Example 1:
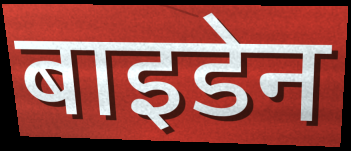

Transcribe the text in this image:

बाइडेन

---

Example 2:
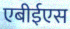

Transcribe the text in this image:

एबीईएस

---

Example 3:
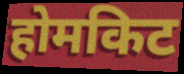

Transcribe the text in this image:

होमकिट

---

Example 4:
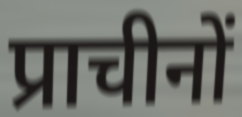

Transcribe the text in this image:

प्राचीनों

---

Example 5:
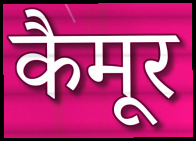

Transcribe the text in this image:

कैमूर